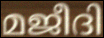
മജീദി